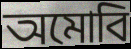
অমোবি